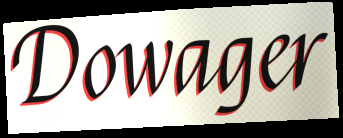
Dowager